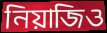
নিয়াজিও